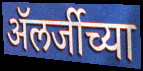
ॲलर्जीच्या